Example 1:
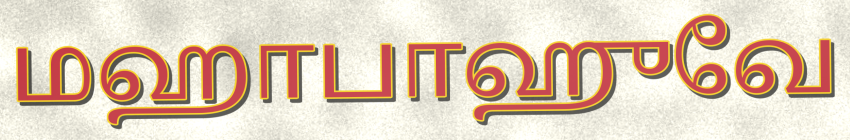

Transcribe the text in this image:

மஹாபாஹுவே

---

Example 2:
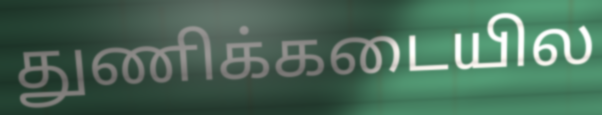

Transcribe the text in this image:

துணிக்கடையில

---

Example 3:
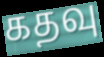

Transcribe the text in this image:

கதவு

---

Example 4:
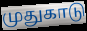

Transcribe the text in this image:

முதுகாடு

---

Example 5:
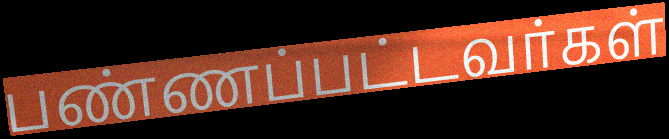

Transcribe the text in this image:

பண்ணப்பட்டவர்கள்